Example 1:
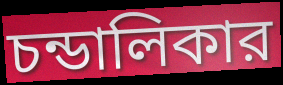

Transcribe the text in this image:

চন্ডালিকার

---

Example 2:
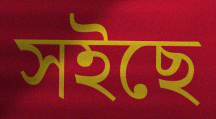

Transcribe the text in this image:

সইছে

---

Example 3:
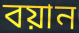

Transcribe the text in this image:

বয়ান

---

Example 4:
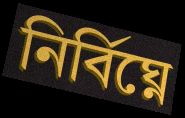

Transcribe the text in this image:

নির্বিঘ্নে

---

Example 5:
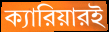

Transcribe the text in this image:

ক্যারিয়ারই